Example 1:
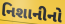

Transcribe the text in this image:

નિશાનીનો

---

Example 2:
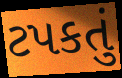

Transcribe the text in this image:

ટપકતું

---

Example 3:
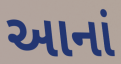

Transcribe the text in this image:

આનાં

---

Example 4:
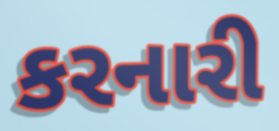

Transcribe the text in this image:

કરનારી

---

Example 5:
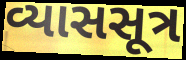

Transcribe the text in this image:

વ્યાસસૂત્ર